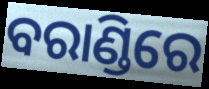
ବରାଣ୍ଡିରେ